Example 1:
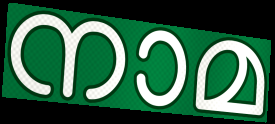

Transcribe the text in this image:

നാമ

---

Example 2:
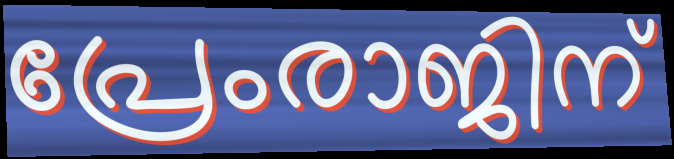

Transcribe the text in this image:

പ്രേംരാജിന്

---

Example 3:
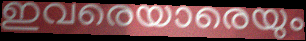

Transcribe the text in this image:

ഇവരെയാരെയും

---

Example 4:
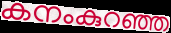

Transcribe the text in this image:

കനംകുറഞ്ഞ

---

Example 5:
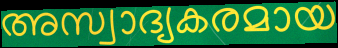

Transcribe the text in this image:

അസ്വാദ്യകരമായ